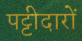
पट्टीदारों